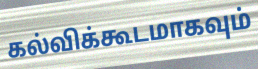
கல்விக்கூடமாகவும்